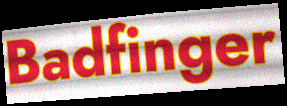
Badfinger